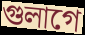
গুলাগে